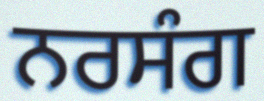
ਨਰਸੰਗ